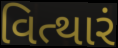
વિત્થારં